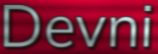
Devni